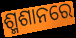
ଶ୍ମଶାନରେ